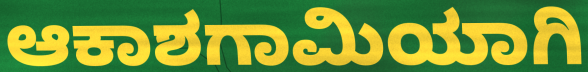
ಆಕಾಶಗಾಮಿಯಾಗಿ